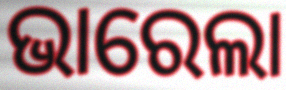
ଭାରେଲା